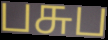
பசுப